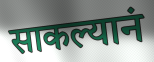
साकल्यानं